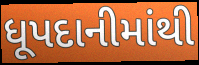
ધૂપદાનીમાંથી